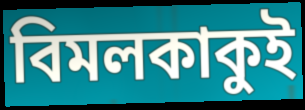
বিমলকাকুই